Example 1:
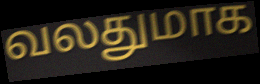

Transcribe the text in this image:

வலதுமாக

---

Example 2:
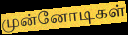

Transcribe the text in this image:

முன்னோடிகள்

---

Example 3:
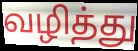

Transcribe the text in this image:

வழித்து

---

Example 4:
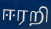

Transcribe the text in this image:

ஈரறி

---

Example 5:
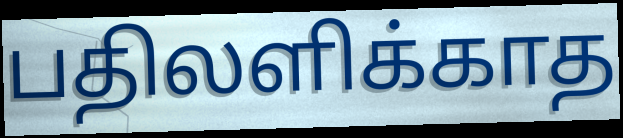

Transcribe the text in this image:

பதிலளிக்காத